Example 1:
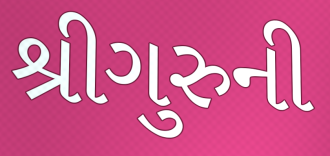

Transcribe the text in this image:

શ્રીગુરુની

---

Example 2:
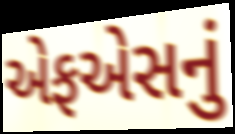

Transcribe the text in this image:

એફએસનું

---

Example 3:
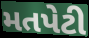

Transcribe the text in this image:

મતપેટી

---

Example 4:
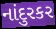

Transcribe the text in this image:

નાંદુરકર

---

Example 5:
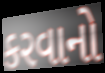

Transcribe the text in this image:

કરવાનો